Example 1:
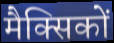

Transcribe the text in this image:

मैक्सिकों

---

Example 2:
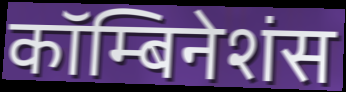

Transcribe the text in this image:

कॉम्बिनेशंस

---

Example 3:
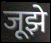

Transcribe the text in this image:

जूझे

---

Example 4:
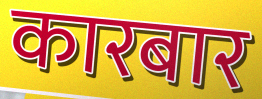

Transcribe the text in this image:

कारबार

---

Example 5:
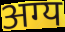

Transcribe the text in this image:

अग्य